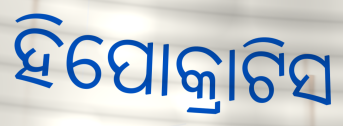
ହିପୋକ୍ରାଟିସ